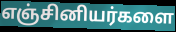
எஞ்சினியர்களை